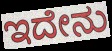
ಇದೇನು